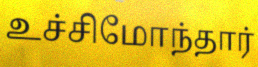
உச்சிமோந்தார்